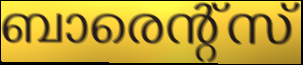
ബാരെന്റ്സ്